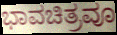
ಭಾವಚಿತ್ರವೂ